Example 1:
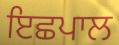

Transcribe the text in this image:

ਇਛਪਾਲ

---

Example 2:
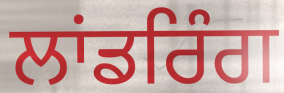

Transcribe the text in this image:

ਲਾਂਡਰਿੰਗ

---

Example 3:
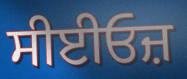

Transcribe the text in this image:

ਸੀਈਓਜ਼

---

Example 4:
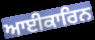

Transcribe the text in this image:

ਆਈਕਾਰਿਨ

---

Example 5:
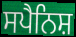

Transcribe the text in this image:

ਸਪੈਨਿਸ਼